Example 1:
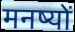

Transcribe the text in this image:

मनष्यों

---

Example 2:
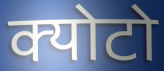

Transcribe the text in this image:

क्‍योटो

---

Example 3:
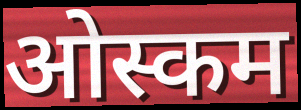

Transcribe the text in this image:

ओस्कम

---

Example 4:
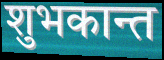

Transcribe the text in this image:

शुभकान्त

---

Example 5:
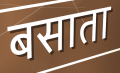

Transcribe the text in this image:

बसाता